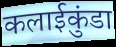
कलाईकुंडा